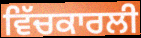
ਵਿੱਚਕਾਰਲੀ